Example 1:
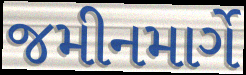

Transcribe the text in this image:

જમીનમાર્ગે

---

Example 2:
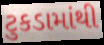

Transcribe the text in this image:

ટુકડામાંથી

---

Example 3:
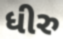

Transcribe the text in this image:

ધીરુ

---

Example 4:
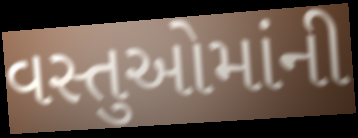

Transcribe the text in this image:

વસ્તુઓમાંની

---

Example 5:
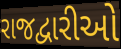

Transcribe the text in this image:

રાજદ્વારીઓ